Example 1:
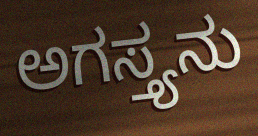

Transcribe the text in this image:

ಅಗಸ್ತ್ಯನು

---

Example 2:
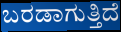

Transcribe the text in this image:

ಬರಡಾಗುತ್ತಿದೆ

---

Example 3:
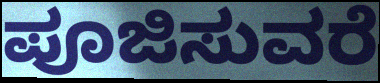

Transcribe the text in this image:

ಪೂಜಿಸುವರೆ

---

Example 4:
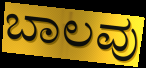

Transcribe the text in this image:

ಬಾಲವು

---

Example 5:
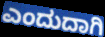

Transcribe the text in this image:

ಎಂದುದಾಗಿ